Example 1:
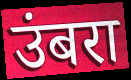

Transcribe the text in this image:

उंबरा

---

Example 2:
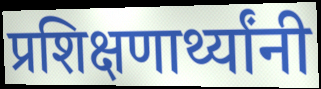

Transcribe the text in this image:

प्रशिक्षणार्थ्यांनी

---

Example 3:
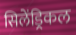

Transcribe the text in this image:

सिलेंड्रिकल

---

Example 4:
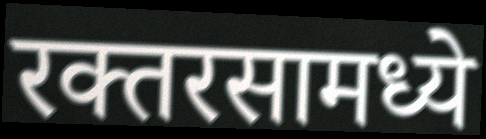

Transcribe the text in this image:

रक्तरसामध्ये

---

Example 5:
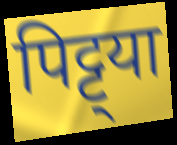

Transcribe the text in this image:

पिट्ट्या